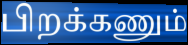
பிறக்கணும்